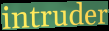
intruder